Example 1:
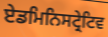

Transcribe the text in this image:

ਏਡਮਿਨਿਸਟ੍ਰੇਟਿਵ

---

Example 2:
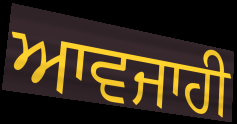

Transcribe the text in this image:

ਆਵਜਾਹੀ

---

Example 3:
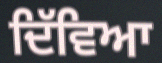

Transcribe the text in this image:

ਦਿੱਵਿਆ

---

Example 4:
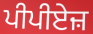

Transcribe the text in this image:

ਪੀਪੀਏਜ਼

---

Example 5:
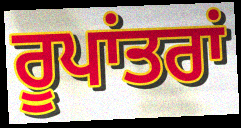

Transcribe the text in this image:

ਰੂਪਾਂਤਰਾਂ